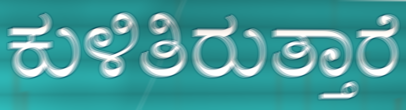
ಕುಳಿತಿರುತ್ತಾರೆ